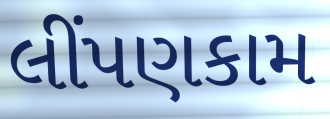
લીંપણકામ